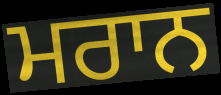
ਮਰਾਨ